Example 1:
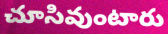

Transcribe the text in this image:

చూసివుంటారు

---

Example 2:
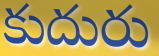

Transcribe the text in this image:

కుదురు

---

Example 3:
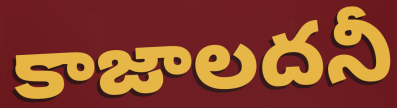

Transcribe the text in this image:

కాజాలదనీ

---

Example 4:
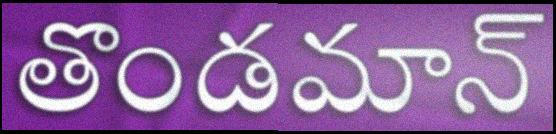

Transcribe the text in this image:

తొండమాన్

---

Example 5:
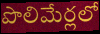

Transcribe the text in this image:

పొలిమేర్లలో